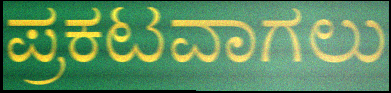
ಪ್ರಕಟವಾಗಲು